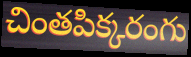
చింతపిక్కరంగు